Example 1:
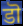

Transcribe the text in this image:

डॊ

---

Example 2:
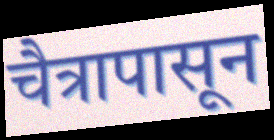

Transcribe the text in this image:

चैत्रापासून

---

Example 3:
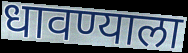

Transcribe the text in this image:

धावण्याला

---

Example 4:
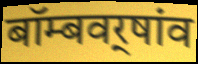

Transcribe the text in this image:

बॉम्बवर्षांव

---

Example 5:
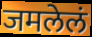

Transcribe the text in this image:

जमलेलं